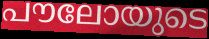
പൗലോയുടെ